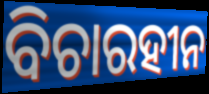
ବିଚାରହୀନ